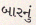
બારનું